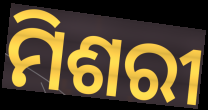
ମିଶରୀ